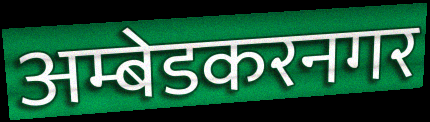
अम्बेडकरनगर